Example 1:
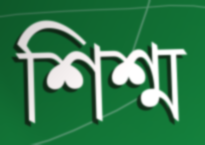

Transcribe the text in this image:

শিশ্ম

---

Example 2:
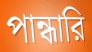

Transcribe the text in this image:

পান্ধারি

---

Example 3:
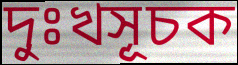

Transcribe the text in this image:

দুঃখসূচক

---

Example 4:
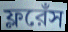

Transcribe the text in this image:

ফ্লরেঁস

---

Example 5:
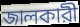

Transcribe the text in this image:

জালকারী